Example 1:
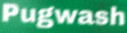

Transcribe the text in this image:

Pugwash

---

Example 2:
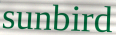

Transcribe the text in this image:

sunbird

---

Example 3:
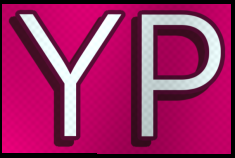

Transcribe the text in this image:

YP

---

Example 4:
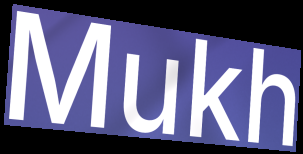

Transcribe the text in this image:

Mukh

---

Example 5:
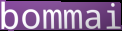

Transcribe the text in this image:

bommai